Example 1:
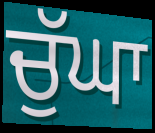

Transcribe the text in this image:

ਚੁੱਘਾ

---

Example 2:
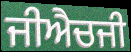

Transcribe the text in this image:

ਜੀਐਚਜੀ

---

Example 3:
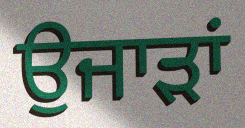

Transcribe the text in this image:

ਉਜਾੜਾਂ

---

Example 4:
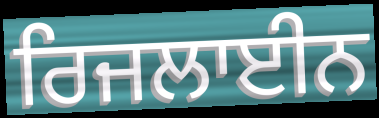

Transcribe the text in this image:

ਰਿਜਲਾਈਨ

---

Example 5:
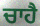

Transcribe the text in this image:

ਚਾਹੈ